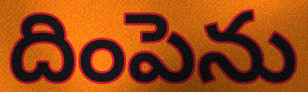
దింపెను